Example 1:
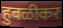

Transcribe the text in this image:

हुबळीकर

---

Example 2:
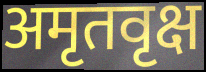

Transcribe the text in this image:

अमृतवृक्ष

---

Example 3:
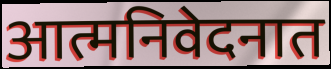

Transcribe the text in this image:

आत्मनिवेदनात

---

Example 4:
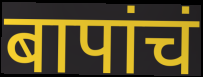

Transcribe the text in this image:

बापांचं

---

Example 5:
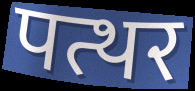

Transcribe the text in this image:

पत्थर